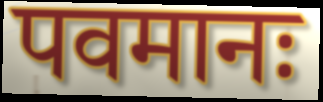
पवमानः